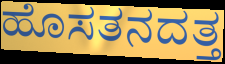
ಹೊಸತನದತ್ತ